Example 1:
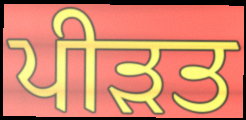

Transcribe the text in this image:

ਪੀਡ਼ਤ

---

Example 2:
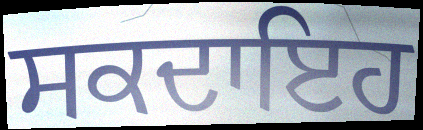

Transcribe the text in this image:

ਸਕਦਾਇਹ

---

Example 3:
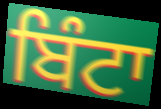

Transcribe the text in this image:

ਬਿੰਟਾ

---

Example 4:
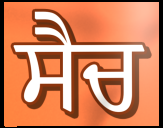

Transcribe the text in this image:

ਸੈਚ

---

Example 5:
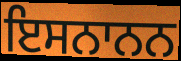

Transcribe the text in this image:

ਇਸਨਾਨਨ